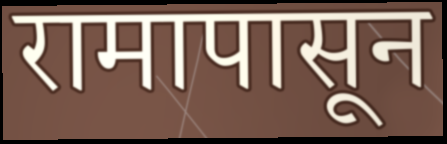
रामापासून